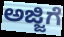
ಅಜ್ಜಿಗೆ